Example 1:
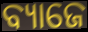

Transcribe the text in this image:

ବ୍ୟାଜେ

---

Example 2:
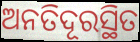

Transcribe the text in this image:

ଅନତିଦୂରସ୍ଥିତ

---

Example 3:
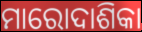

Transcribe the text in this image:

ମାରୋଦାଶିକା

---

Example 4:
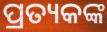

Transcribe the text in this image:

ପ୍ରତ୍ୟକଙ୍କ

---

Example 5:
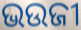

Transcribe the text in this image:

ଭଉଜୀ